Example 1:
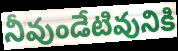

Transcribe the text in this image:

నీవుండేటివునికి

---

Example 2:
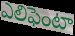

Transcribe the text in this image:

ఎలిఫెంటా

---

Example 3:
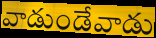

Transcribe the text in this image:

వాడుండేవాడు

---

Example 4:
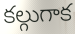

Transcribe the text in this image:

కల్గుగాక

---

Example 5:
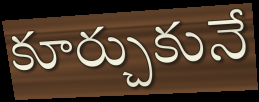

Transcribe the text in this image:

కూర్చుకునే